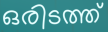
ഒരിടത്ത്